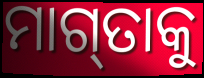
ମାଗ୍‌ତାକୁ